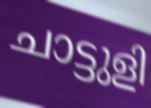
ചാട്ടുളി